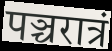
पञ्चरात्रं